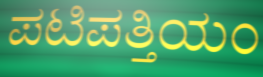
ಪಟಿಪತ್ತಿಯಂ